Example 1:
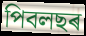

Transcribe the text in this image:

পিবলছৰ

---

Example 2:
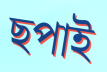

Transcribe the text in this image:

ছপাই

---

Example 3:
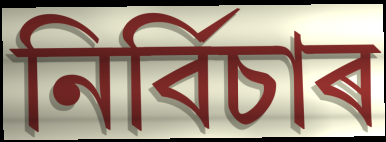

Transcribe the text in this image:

নিৰ্বিচাৰ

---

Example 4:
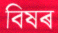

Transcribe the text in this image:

বিষৰ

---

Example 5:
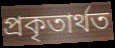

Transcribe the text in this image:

প্ৰকৃতাৰ্থত